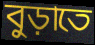
বুড়াতে